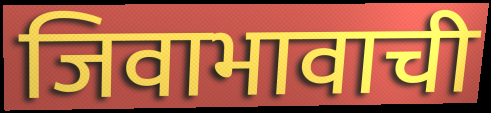
जिवाभावाची